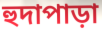
হুদাপাড়া